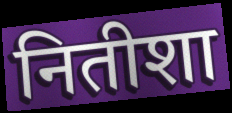
नितीशा